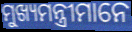
ମୁଖ୍ୟମନ୍ତ୍ରୀମାନେ